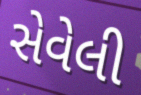
સેવેલી